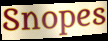
Snopes